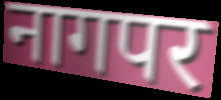
नागपर